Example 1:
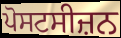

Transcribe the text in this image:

ਪੋਸਟਸੀਜ਼ਨ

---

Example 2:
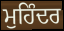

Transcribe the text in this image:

ਮੁਹਿੰਦਰ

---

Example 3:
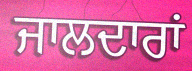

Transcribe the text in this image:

ਜਾਲਦਾਰਾਂ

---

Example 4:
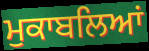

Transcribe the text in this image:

ਮੁਕਾਬਲਿਆਂ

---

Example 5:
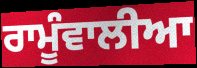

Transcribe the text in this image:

ਰਾਮੂੰਵਾਲੀਆ